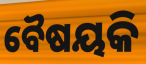
ବୈଷୟକି